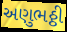
અણુભઠ્ઠી